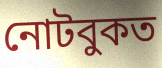
নোটবুকত